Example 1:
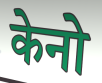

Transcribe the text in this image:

केनो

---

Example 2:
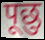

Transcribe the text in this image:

पूछु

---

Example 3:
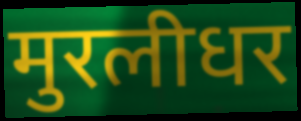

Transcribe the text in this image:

मुरलीधर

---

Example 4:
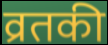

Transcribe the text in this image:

व्रतकी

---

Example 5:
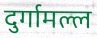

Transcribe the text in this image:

दुर्गामल्ल